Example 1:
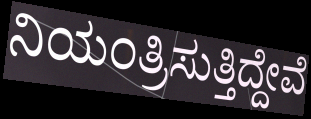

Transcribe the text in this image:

ನಿಯಂತ್ರಿಸುತ್ತಿದ್ದೇವೆ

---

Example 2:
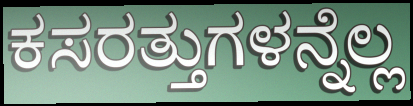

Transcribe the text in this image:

ಕಸರತ್ತುಗಳನ್ನೆಲ್ಲ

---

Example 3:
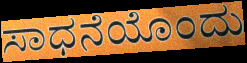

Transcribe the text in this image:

ಸಾಧನೆಯೊಂದು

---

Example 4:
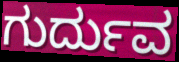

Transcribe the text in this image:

ಗುರ್ದುವ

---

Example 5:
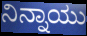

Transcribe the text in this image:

ನಿನ್ನಾಯು